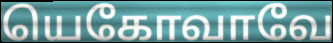
யெகோவாவே